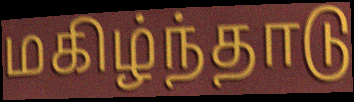
மகிழ்ந்தாடு